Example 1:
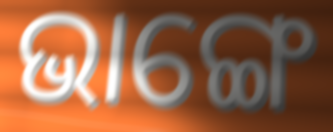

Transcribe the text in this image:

ଭାଙ୍ଗେ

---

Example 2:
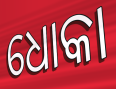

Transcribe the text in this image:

ଧୋକା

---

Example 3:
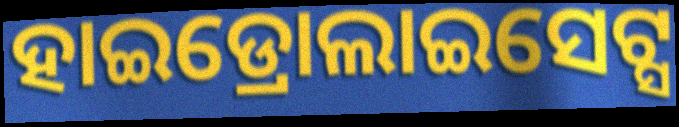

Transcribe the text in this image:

ହାଇଡ୍ରୋଲାଇସେଟ୍ସ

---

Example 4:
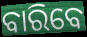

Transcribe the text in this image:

ବାରିବେ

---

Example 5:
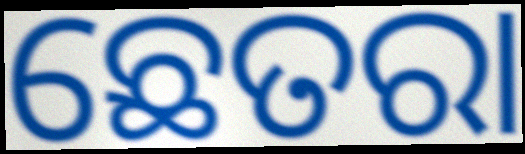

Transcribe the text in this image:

ଛେତରା